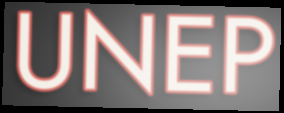
UNEP